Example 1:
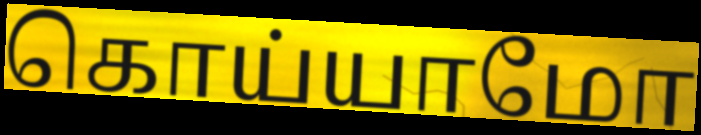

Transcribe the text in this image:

கொய்யாமோ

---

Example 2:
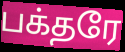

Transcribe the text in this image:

பக்தரே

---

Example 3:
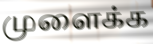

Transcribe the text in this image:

முளைக்க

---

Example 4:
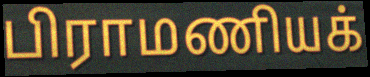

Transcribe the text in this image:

பிராமணியக்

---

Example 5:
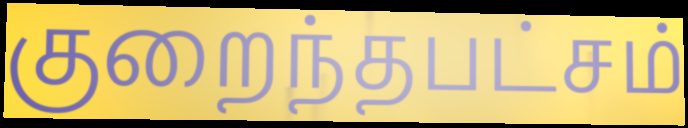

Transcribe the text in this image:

குறைந்தபட்சம்